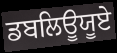
ਡਬਲਿਊਯੂਏ